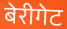
बेरीगेट